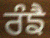
ਰੰਙੈ